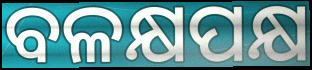
ବଳକ୍ଷପକ୍ଷ